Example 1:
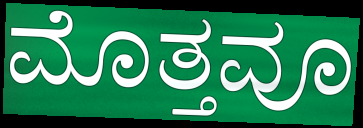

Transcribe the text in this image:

ಮೊತ್ತವೂ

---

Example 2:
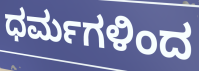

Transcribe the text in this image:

ಧರ್ಮಗಳಿಂದ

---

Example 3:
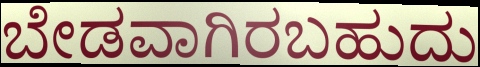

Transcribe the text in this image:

ಬೇಡವಾಗಿರಬಹುದು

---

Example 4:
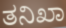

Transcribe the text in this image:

ತನಿಖಾ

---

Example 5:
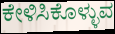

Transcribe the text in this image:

ಕೇಳಿಸಿಕೊಳ್ಳುವ